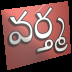
వర్త్మ